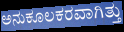
ಅನುಕೂಲಕರವಾಗಿತ್ತು